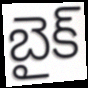
బైక్